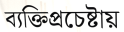
ব্যক্তিপ্রচেষ্টায়